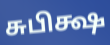
சுபிக்ஷ